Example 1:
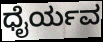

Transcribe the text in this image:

ಧೈರ್ಯವ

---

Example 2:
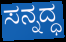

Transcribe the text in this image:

ಸನ್ನದ್ಧ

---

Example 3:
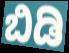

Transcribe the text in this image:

ಬಿಡಿ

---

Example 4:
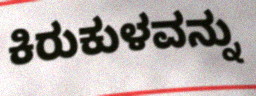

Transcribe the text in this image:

ಕಿರುಕುಳವನ್ನು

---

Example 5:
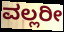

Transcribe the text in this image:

ವಲ್ಲರೀ